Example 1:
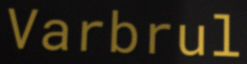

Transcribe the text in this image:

Varbrul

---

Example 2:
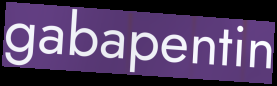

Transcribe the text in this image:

gabapentin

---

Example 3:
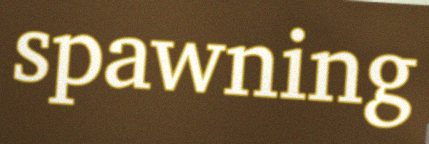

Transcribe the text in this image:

spawning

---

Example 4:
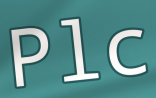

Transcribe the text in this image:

Plc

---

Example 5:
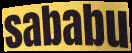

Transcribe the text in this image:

sababu